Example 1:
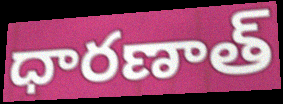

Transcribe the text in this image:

ధారణాత్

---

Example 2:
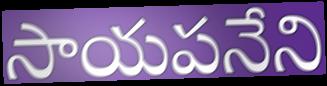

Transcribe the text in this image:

సాయపనేని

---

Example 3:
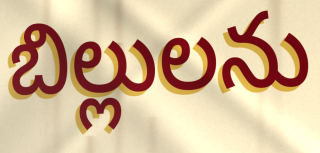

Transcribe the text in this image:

బిల్లులను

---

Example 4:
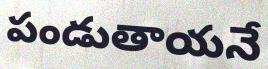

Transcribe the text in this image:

పండుతాయనే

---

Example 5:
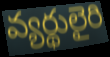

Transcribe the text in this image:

వ్యర్థులైరి